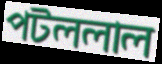
পটললাল